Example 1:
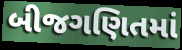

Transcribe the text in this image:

બીજગણિતમાં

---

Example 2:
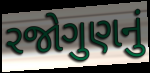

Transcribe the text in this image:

રજોગુણનું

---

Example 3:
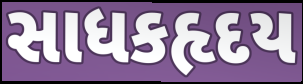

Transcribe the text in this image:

સાધકહૃદય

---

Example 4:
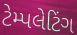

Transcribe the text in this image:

ટેમ્પલેટિંગ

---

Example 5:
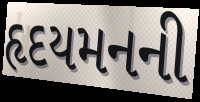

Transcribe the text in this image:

હૃદયમનની